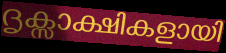
ദൃക്സാക്ഷികളായി